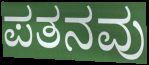
ಪತನವು